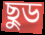
ছুড